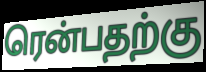
ரென்பதற்கு